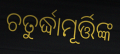
ଚତୁର୍ଦ୍ଧାମୂର୍ତ୍ତିଙ୍କ